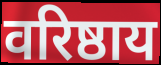
वरिष्ठाय